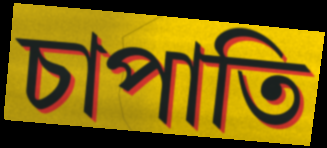
চাপাতি